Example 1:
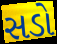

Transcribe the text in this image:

સડો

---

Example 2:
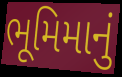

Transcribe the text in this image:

ભૂમિમાનું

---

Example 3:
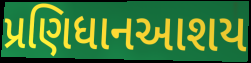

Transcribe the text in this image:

પ્રણિધાનઆશય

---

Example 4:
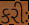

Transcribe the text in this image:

કરીઃ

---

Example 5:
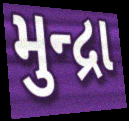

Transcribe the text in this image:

મુન્દ્રા